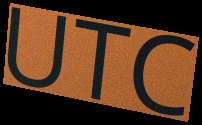
UTC